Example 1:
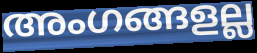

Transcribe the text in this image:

അംഗങ്ങളല്ല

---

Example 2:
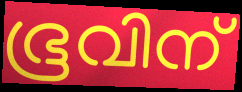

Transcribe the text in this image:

ഭൂവിന്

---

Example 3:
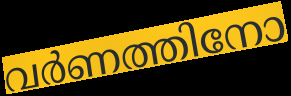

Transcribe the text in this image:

വർണത്തിനോ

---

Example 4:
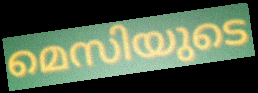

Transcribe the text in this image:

മെസിയുടെ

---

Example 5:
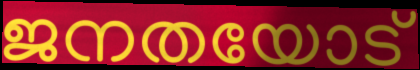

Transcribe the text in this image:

ജനതയോട്